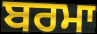
ਬਰਮਾ